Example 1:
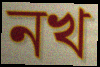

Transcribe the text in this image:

নখ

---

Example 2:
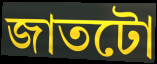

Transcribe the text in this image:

জাতটো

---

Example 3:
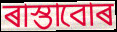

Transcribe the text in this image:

ৰাস্তাবোৰ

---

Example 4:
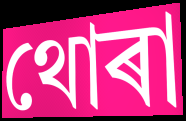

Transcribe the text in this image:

থোৰা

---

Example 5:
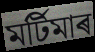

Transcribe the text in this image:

মৰ্টিমাৰ